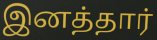
இனத்தார்